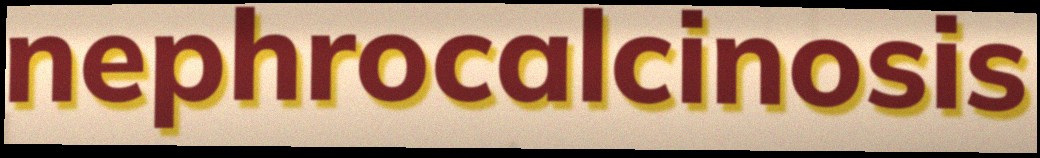
nephrocalcinosis